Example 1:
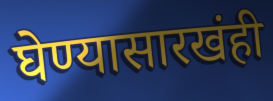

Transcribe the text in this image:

घेण्यासारखंही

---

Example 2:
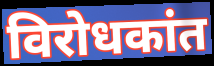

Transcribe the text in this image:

विरोधकांत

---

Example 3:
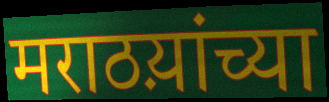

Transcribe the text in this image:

मराठय़ांच्या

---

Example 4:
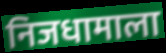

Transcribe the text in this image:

निजधामाला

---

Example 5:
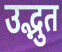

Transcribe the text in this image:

उद्भुत